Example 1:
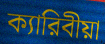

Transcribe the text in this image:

ক্যারিবীয়া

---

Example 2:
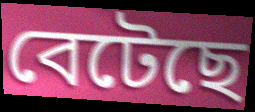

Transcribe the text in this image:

বেটেছে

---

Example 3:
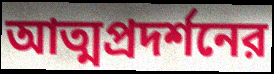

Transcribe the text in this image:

আত্মপ্রদর্শনের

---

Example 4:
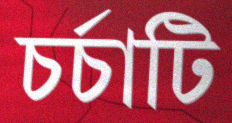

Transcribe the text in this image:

চর্চাটি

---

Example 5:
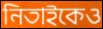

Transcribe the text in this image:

নিতাইকেও